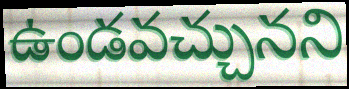
ఉండవచ్చునని